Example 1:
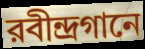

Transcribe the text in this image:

রবীন্দ্রগানে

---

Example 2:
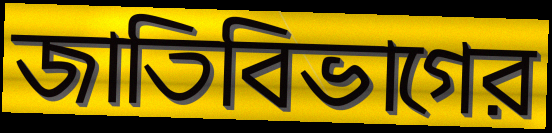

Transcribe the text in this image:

জাতিবিভাগের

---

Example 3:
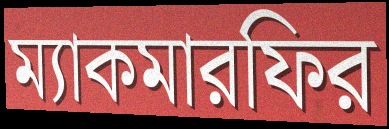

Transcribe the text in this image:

ম্যাকমারফির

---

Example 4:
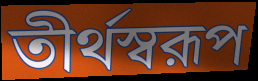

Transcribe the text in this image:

তীর্থস্বরূপ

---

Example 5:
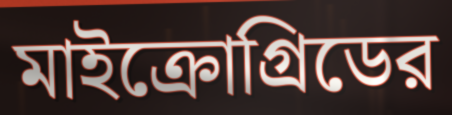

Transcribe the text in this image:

মাইক্রোগ্রিডের